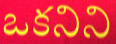
ఒకనిని